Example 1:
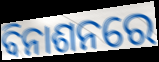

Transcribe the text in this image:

ବିନାଶନରେ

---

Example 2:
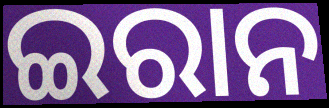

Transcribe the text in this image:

ଇରାନ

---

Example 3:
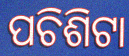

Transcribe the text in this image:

ପଚିଶିଟା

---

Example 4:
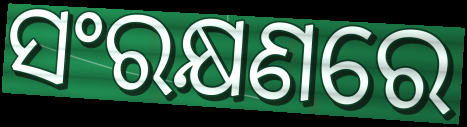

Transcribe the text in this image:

ସଂରକ୍ଷଣରେ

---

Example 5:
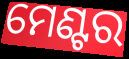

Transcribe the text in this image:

ମେଣ୍ଟର